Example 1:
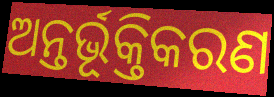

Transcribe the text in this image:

ଅନ୍ତର୍ଭୂକ୍ତିକରଣ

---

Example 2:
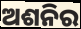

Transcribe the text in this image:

ଅଶନିର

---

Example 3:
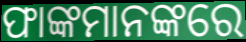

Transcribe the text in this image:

ଫାଙ୍କମାନଙ୍କରେ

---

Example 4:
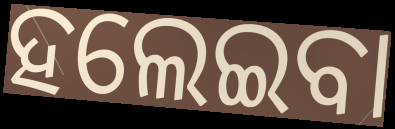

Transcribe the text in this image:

ହଲେଇବା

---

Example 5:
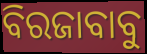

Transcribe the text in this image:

ବିରଜାବାବୁ